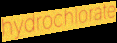
hydrochlorate